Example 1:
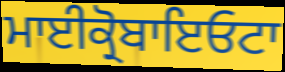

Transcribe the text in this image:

ਮਾਈਕ੍ਰੋਬਾਇਓਟਾ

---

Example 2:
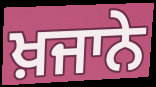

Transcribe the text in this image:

ਖ਼ਜਾਨੇ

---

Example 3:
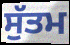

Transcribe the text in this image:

ਸੁੱਤਮ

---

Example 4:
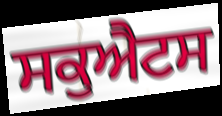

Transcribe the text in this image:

ਸਕੁਐਟਸ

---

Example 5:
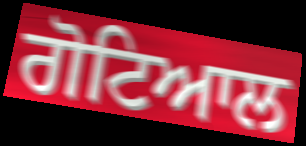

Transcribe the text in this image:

ਗੋਟਿਆਲ